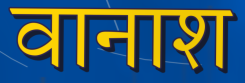
वानाश